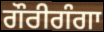
ਗੌਰੀਗੰਗਾ